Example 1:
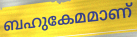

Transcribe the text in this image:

ബഹുകേമമാണ്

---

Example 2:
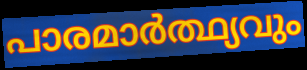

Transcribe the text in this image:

പാരമാർത്ഥ്യവും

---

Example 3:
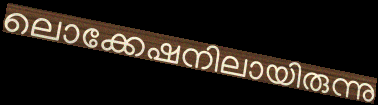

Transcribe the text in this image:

ലൊക്കേഷനിലായിരുന്നു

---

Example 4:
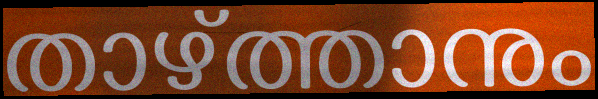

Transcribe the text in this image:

താഴ്ത്താനും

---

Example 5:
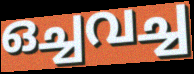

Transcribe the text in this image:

ഒച്ചവച്ച